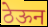
ठेऊन